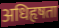
अधिहृषता